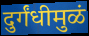
दुर्गंधीमुळं